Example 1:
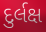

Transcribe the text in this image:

દુર્લક્ષ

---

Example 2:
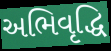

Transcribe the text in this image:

અભિવૃદ્ધિ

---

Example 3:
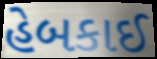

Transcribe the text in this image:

હેબકાઈ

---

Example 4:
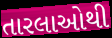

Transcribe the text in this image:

તારલાઓથી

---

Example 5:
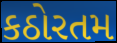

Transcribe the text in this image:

કઠોરતમ